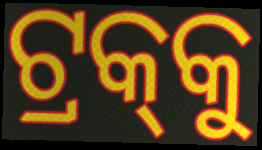
ଟ୍ରକ୍‍କୁ